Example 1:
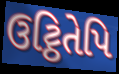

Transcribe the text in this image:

ઉટ્ઠિતેપિ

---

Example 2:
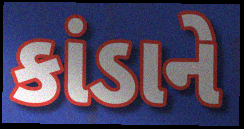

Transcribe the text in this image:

કાંડાને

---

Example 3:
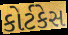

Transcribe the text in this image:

કોર્ટકેસ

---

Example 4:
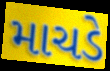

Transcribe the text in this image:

માચડે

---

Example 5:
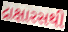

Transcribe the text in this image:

દ્રાક્ષારસથી